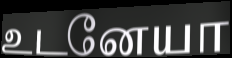
உடனேயா